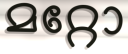
മറ്റോ